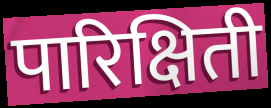
पारिक्षिती